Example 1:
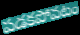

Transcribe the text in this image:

పడకపోవటం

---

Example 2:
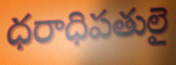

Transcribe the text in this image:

ధరాధిపతులై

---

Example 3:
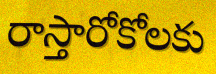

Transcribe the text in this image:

రాస్తారోకోలకు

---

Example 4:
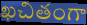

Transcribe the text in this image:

ఖచితంగా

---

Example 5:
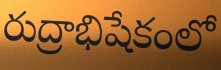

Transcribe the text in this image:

రుద్రాభిషేకంలో